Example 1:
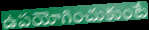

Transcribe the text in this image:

ఉపయోగించుకుంటే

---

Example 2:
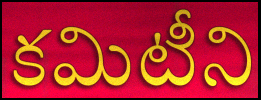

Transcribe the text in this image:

కమిటీని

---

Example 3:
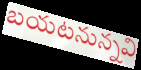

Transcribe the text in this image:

బయటనున్నవి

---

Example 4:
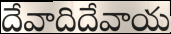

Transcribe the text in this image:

దేవాదిదేవాయ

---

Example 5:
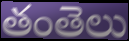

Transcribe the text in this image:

తంతెలు